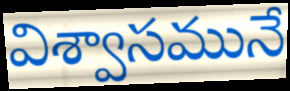
విశ్వాసమునే